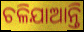
ଚଳିଯାଆନ୍ତି